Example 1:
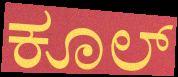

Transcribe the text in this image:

ಕೂಲ್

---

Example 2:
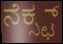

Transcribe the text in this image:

ನೆಕ್ಸ್ಟ್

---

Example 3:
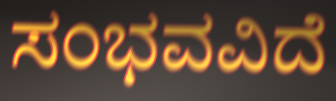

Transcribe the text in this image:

ಸಂಭವವಿದೆ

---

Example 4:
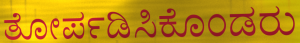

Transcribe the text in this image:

ತೋರ್ಪಡಿಸಿಕೊಂಡರು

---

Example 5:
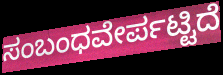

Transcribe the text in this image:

ಸಂಬಂಧವೇರ್ಪಟ್ಟಿದೆ